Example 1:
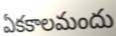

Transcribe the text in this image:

ఏకకాలమందు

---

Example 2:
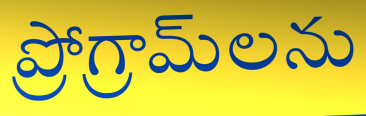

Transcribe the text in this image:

ప్రోగ్రామ్‌లను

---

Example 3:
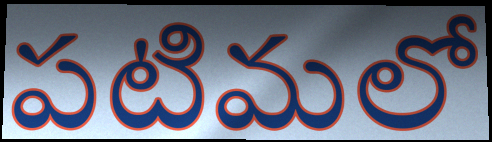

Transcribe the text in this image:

పటిమలో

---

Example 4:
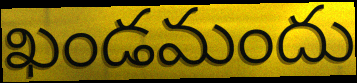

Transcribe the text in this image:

ఖండమందు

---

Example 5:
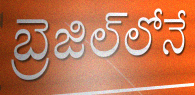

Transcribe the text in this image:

బ్రెజిల్‌లోనే